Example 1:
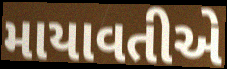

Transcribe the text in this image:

માયાવતીએ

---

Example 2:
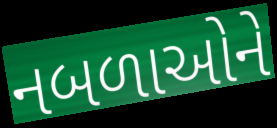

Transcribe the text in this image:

નબળાઓને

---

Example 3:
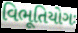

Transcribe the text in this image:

વિભૂતિયોગઃ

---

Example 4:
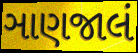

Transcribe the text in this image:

ઞાણજાલં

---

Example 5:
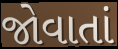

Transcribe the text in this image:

જોવાતાં